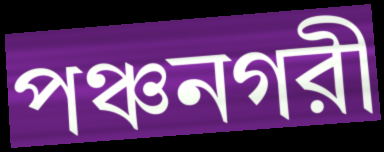
পঞ্চনগরী